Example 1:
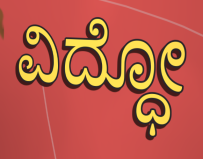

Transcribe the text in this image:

ವಿದ್ಧೋ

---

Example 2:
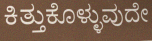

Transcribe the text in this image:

ಕಿತ್ತುಕೊಳ್ಳುವುದೇ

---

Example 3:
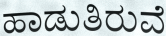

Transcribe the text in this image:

ಹಾಡುತಿರುವೆ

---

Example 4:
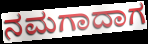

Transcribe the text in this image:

ನಮಗಾದಾಗ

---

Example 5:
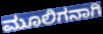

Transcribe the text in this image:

ಮೂಲಿಗನಾಗಿ